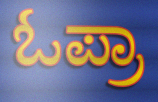
ಓಪ್ರಾ